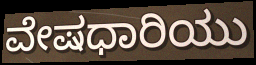
ವೇಷಧಾರಿಯು